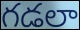
గడలా